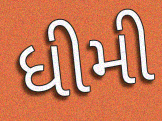
ધીમી